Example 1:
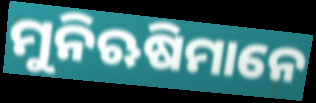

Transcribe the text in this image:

ମୁନିଋଷିମାନେ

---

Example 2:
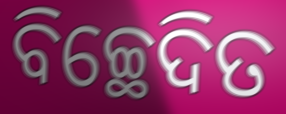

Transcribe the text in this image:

ବିଚ୍ଛେଦିତ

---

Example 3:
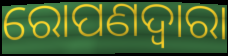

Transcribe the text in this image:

ରୋପଣଦ୍ୱାରା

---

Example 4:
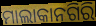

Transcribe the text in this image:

ମାଲାକାନଗିରି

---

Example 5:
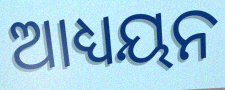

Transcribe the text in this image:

ଆଧ୍ୟୟନ